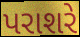
પરાશરે